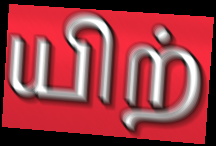
யிற்